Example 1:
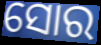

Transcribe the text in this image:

ସୋର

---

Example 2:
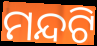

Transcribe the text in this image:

ମନ୍ଦଟି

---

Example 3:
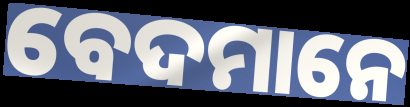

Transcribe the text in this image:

ବେଦମାନେ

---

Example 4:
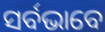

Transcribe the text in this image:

ସର୍ବଭାବେ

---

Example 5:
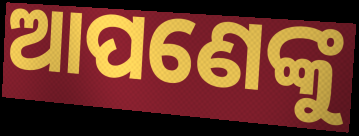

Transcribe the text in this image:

ଆପଣେଙ୍କୁ